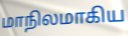
மாநிலமாகிய